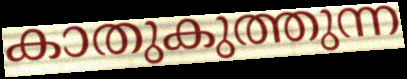
കാതുകുത്തുന്ന